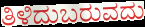
ತಿಳಿದುಬರುವದು